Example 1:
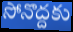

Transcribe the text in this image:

సోనొద్దకు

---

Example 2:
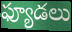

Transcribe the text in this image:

ఫ్యూడలు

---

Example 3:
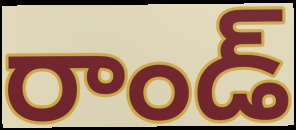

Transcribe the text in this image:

రాండ్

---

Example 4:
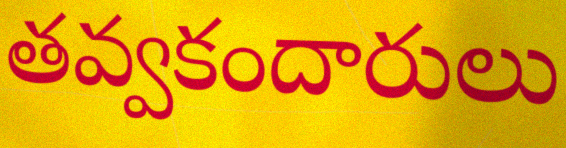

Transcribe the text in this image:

తవ్వకందారులు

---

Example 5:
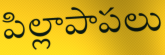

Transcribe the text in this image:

పిల్లాపాపలు